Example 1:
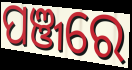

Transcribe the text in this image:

ପଞ୍ଜରେ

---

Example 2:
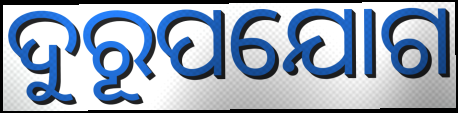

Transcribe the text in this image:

ଦୁରୂପଯୋଗ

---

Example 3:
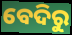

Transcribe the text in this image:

ବେଦିରୁ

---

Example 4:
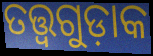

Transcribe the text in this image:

ତତ୍ତ୍ୱଗୁଡ଼ାକ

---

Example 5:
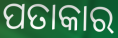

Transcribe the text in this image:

ପତାକାର